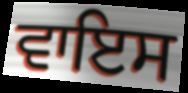
ਵਾਇਸ